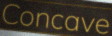
Concave